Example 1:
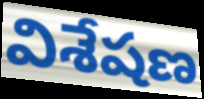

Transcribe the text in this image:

విశేషణ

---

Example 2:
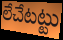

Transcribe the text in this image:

లేచేటట్టు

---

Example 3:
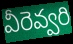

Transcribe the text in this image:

వీరెవ్వరి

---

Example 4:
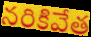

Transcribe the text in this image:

నరికివేత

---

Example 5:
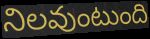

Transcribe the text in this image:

నిలవుంటుంది